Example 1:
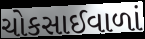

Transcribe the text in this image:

ચોકસાઈવાળાં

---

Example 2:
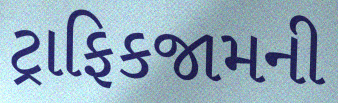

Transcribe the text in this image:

ટ્રાફિકજામની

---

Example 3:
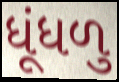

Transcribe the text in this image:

ધૂંધળુ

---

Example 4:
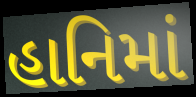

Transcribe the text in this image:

હાનિમાં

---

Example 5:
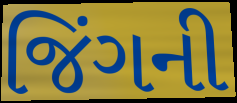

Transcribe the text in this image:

જિંગની